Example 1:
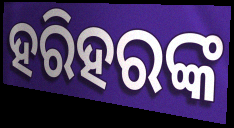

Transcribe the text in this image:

ହରିହରଙ୍କ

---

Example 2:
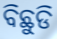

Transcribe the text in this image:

ବିଛୁଡି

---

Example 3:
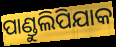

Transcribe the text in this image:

ପାଣ୍ଡୁଲିପିଯାକ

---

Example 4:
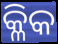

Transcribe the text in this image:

କ୍ଳିକ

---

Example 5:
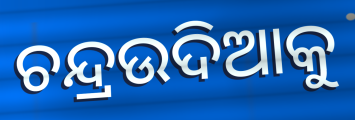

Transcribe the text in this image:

ଚନ୍ଦ୍ରଉଦିଆକୁ